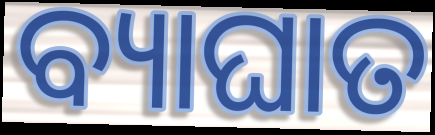
ବ୍ୟାଘାତ